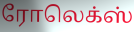
ரோலெக்ஸ்